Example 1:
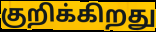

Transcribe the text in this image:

குறிக்கிறது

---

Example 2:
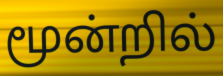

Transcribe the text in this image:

மூன்றில்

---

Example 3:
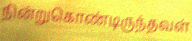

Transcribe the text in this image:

நின்றுகொண்டிருந்தவள்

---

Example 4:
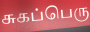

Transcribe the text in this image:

சுகப்பெரு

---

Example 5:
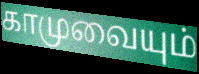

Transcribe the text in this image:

காமுவையும்